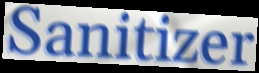
Sanitizer